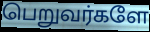
பெறுவர்களே